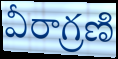
వీరాగ్రణి